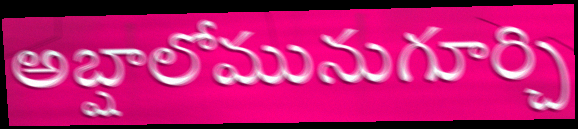
అబ్షాలోమునుగూర్చి